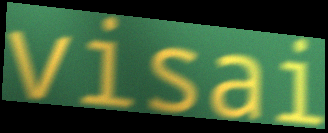
visai